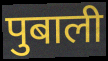
पुबाली